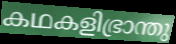
കഥകളിഭ്രാന്തു